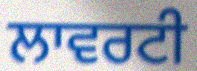
ਲਾਵਰਟੀ